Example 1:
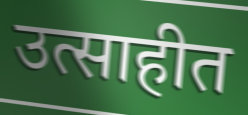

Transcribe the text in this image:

उत्साहीत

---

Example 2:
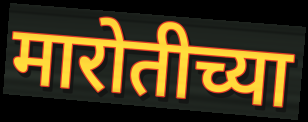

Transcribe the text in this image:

मारोतीच्या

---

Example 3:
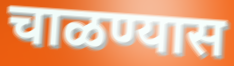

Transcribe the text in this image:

चाळण्यास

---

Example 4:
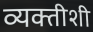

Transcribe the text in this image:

व्यक्‍तीशी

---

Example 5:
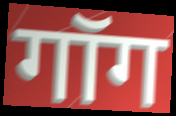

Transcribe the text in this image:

गॉग